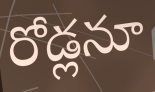
రోడ్లనూ